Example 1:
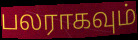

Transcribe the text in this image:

பலராகவும்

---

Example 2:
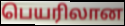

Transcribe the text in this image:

பெயரிலான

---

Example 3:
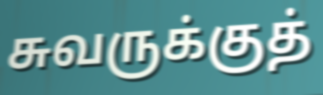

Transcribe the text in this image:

சுவருக்குத்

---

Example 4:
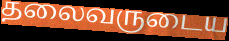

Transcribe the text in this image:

தலைவருடைய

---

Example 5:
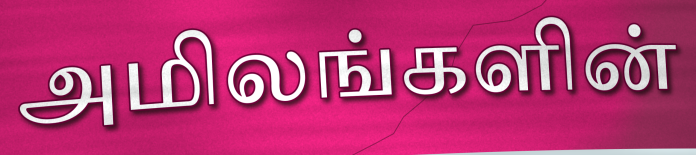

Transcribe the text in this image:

அமிலங்களின்